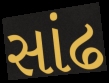
સાંઢ